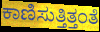
ಕಾಣಿಸುತ್ತಿತ್ತಂತೆ